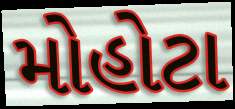
મોહોટા